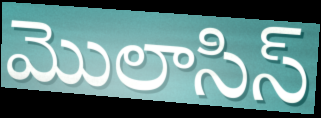
మొలాసిస్